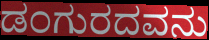
ಡಂಗುರದವನು